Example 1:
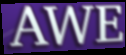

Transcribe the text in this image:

AWE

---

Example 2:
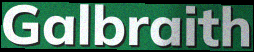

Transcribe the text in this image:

Galbraith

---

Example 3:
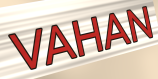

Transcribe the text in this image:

VAHAN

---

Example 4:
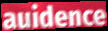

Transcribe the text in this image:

auidence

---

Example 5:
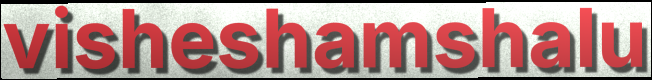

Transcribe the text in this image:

visheshamshalu